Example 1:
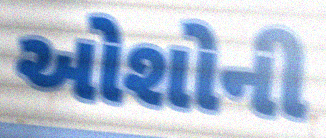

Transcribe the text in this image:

ઓશોની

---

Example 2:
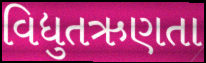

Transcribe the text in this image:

વિદ્યુતઋણતા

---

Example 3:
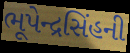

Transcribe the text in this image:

ભૂપેન્દ્રસિંહની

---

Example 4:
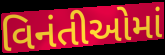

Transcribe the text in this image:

વિનંતીઓમાં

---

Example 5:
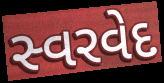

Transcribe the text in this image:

સ્વરવેદ